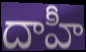
దాహీ